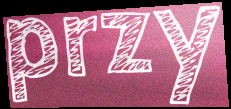
przy